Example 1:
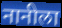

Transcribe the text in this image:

नानीला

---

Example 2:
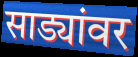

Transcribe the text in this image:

साड्यांवर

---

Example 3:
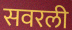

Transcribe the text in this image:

सवरली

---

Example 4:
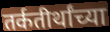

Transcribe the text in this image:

तर्कतीर्थांच्या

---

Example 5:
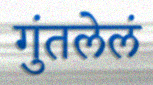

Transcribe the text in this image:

गुंतलेलं